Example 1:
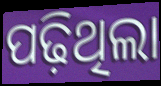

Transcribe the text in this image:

ପଢ଼ିଥିଲା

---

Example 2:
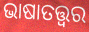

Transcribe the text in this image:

ଭାଷାତତ୍ତ୍ଵର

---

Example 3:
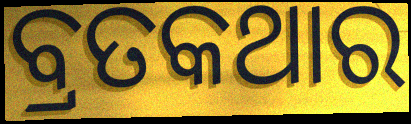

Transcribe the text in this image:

ବ୍ରତକଥାର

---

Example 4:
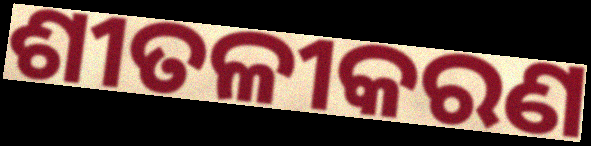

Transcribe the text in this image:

ଶୀତଳୀକରଣ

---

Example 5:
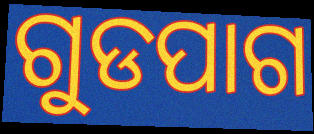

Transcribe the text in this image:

ଗୁଡପାଗ